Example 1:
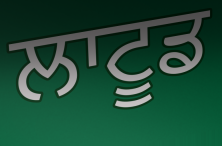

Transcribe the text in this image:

ਲਾਟੂਡ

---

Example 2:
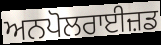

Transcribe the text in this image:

ਅਨਪੋਲਰਾਈਜ਼ਡ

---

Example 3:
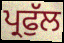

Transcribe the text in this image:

ਪ੍ਰਫੁੱਲ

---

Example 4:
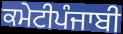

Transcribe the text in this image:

ਕਮੇਟੀਪੰਜਾਬੀ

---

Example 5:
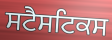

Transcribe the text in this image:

ਸਟੈਸਟਿਕਸ